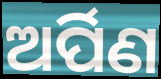
ଅର୍ପିଣ